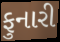
ફુનારી